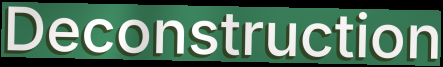
Deconstruction